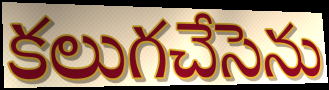
కలుగచేసెను